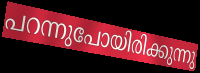
പറന്നുപോയിരിക്കുന്നു